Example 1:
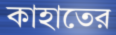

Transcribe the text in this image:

কাহাতের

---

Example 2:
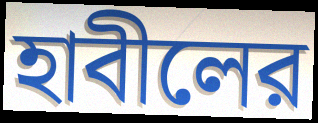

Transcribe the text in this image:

হাবীলের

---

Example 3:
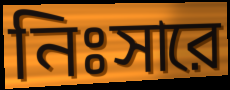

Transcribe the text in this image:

নিঃসারে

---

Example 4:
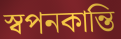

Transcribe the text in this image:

স্বপনকান্তি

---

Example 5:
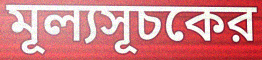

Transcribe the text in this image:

মূল্যসূচকের